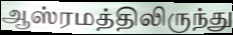
ஆஸ்ரமத்திலிருந்து